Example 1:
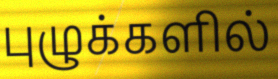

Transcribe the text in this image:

புழுக்களில்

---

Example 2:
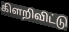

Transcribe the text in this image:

கிளறிவிட்டு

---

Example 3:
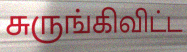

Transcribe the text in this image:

சுருங்கிவிட்ட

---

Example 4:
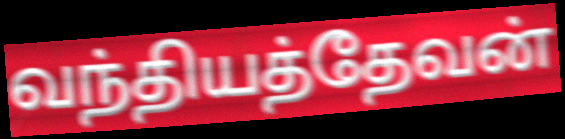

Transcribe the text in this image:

வந்தியத்தேவன்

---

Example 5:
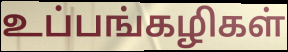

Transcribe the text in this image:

உப்பங்கழிகள்